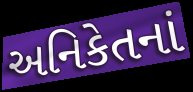
અનિકેતનાં